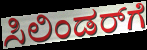
ಸಿಲಿಂಡರ್‌ಗೆ